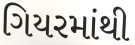
ગિયરમાંથી